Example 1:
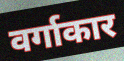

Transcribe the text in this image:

वर्गाकार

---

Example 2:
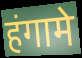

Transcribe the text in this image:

हंगामे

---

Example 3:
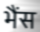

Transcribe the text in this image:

भैंस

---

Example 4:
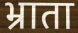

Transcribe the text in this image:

भ्राता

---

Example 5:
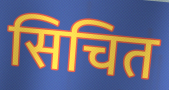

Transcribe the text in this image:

सिचित